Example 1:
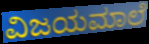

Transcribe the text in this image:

ವಿಜಯಮಾಲೆ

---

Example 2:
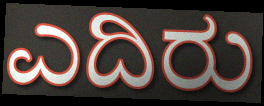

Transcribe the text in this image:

ಎದಿರು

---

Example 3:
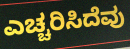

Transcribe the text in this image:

ಎಚ್ಚರಿಸಿದೆವು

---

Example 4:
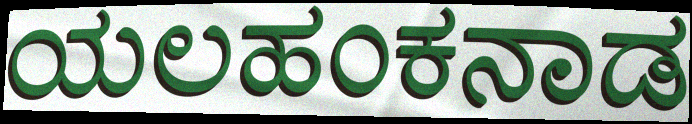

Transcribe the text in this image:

ಯಲಹಂಕನಾಡ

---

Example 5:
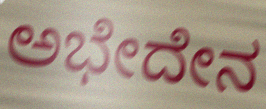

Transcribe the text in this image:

ಅಭೇದೇನ